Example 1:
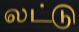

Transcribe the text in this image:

லட்டு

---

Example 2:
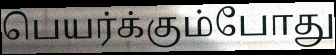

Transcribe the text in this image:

பெயர்க்கும்போது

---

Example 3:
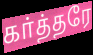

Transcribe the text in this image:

கர்த்தரே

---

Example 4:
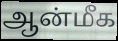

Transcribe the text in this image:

ஆன்மீக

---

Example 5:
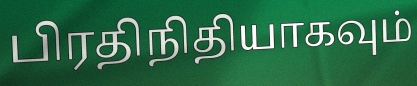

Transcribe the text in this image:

பிரதிநிதியாகவும்